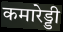
कमारेड्डी